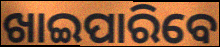
ଖାଇପାରିବେ